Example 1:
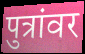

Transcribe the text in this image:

पुत्रांवर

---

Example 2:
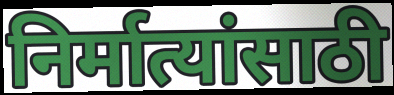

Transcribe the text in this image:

निर्मात्यांसाठी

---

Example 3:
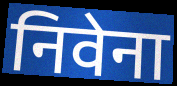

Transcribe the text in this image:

निवेना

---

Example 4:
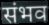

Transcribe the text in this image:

संभव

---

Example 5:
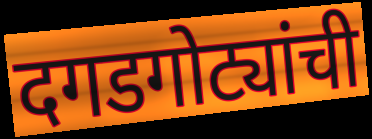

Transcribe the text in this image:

दगडगोट्यांची